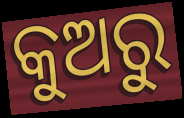
କୁଅରୁ